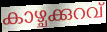
കാഴ്ചക്കുറവ്